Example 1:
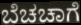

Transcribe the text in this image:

ಬೆಚಚಾಗೆ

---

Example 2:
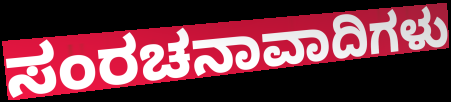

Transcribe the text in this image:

ಸಂರಚನಾವಾದಿಗಳು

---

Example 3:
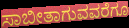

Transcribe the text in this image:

ಸಾಬೀತಾಗುವವರೆಗೂ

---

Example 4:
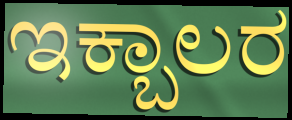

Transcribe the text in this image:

ಇಕ್ಬಾಲರ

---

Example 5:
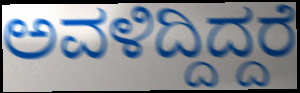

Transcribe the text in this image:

ಅವಳಿದ್ದಿದ್ದರೆ